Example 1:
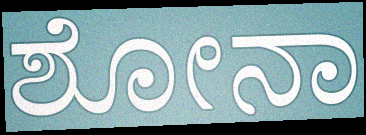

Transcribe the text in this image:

ಶೋನಾ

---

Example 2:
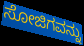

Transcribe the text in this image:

ಸೋಜಿಗವನ್ನು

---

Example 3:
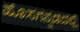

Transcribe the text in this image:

ಹೊಸಗನ್ನಡದಲ್ಲಿ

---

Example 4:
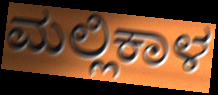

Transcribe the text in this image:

ಮಲ್ಲಿಕಾಳ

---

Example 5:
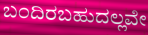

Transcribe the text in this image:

ಬಂದಿರಬಹುದಲ್ಲವೇ